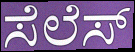
ಸೆಲೆಸ್